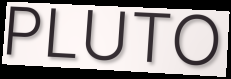
PLUTO